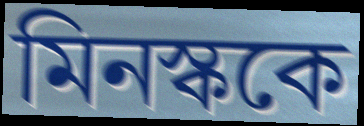
মিনস্ককে